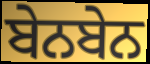
ਬੇਨਬੇਨ